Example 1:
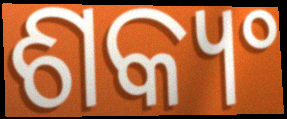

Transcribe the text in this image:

ଶକ୍ୟଂ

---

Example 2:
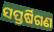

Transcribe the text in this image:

ସପ୍ତର୍ଷିଗଣ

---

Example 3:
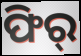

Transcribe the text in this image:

ଫିର୍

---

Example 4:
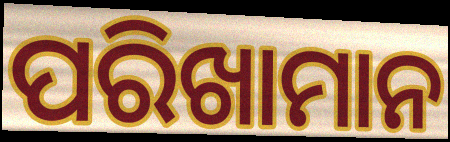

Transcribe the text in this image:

ପରିଖାମାନ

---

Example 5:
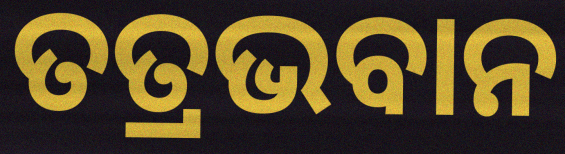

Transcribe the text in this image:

ତତ୍ରଭବାନ